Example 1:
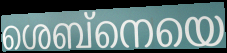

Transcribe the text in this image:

ശെബ്നെയെ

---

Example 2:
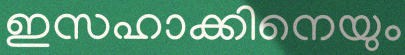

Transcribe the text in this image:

ഇസഹാക്കിനെയും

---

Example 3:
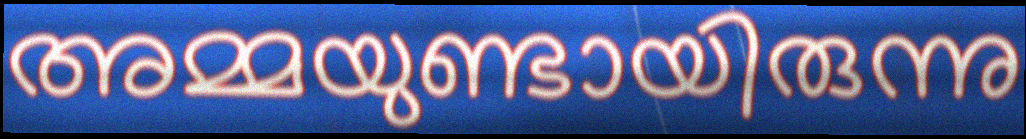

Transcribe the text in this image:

അമ്മയുണ്ടായിരുന്നു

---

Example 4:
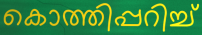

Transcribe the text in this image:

കൊത്തിപ്പറിച്ച്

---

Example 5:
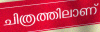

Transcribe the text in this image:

ചിത്രത്തിലാണ്